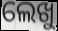
ଲେଖୁ